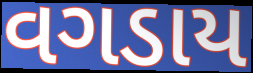
વગડાય